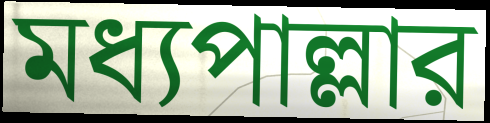
মধ্যপাল্লার